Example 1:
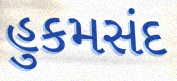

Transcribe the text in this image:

હુકમસંદ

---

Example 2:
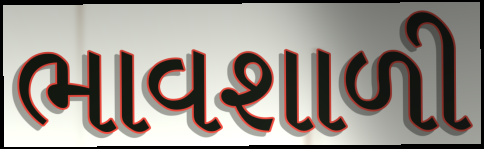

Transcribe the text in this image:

ભાવશાળી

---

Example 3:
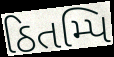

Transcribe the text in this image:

ઠિતમ્પિ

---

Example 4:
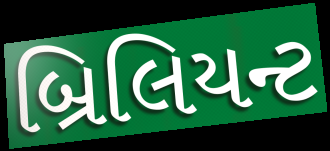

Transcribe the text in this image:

બ્રિલિયન્ટ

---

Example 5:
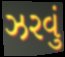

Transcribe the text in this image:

ઝરવું